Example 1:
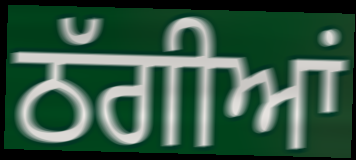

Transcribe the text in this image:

ਠੱਗੀਆਂ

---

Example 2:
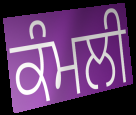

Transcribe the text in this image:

ਕੰਮਲੀ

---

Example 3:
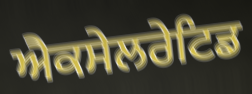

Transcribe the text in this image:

ਐਕਸੇਲਰੇਟਿਡ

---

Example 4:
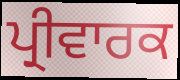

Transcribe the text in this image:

ਪ੍ਰੀਵਾਰਕ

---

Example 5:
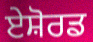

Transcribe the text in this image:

ਏਸ਼ੋਰਡ